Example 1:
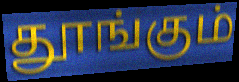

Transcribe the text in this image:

தூங்கும்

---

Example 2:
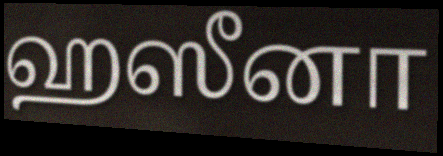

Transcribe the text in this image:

ஹஸீனா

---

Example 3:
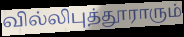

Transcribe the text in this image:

வில்லிபுத்தூராரும்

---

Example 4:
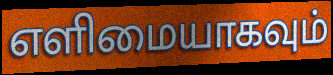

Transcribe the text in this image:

எளிமையாகவும்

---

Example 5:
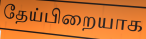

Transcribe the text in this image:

தேய்பிறையாக